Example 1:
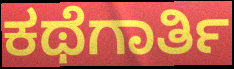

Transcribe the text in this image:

ಕಥೆಗಾರ್ತಿ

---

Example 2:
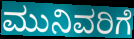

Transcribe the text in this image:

ಮುನಿವರಿಗೆ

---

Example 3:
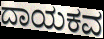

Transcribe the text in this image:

ದಾಯಕವ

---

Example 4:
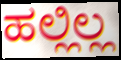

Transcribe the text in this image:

ಹಲ್ಲಿಲ್ಲ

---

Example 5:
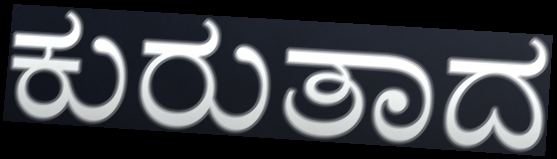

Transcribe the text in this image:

ಕುರುತಾದ